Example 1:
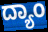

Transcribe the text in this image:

ದ್ಯಾಂ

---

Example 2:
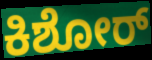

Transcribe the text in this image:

ಕಿಶೋರ್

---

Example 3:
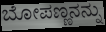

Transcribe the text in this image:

ಬೋಪಣ್ಣನನ್ನು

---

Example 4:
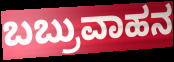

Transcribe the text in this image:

ಬಬ್ರುವಾಹನ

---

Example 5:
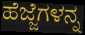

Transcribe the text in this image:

ಹೆಜ್ಜೆಗಳನ್ನ